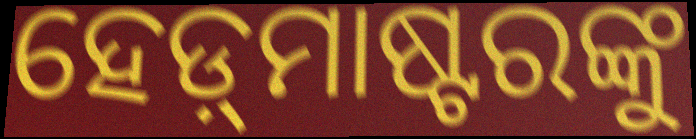
ହେଡ଼୍‌ମାଷ୍ଟରଙ୍କୁ